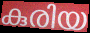
കുരിയ